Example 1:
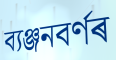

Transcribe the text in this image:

ব্যঞ্জনবৰ্ণৰ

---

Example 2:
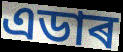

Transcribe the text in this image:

এডাৰ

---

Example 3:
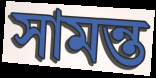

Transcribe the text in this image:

সামন্ত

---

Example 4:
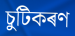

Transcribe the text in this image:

চুটিকৰণ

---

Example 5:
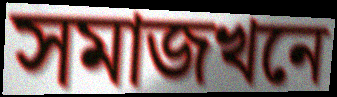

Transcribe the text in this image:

সমাজখনে